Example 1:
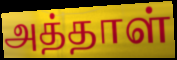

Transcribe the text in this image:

அத்தாள்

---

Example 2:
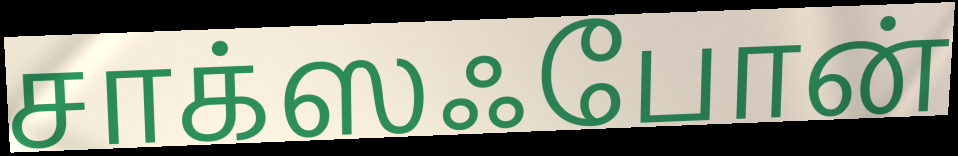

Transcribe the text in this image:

சாக்ஸஃபோன்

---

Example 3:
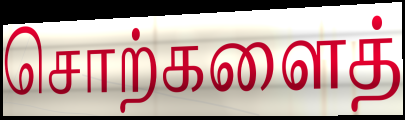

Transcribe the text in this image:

சொற்களைத்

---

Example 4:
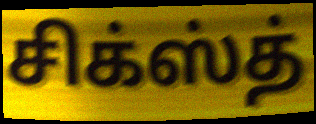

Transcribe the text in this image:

சிக்ஸ்த்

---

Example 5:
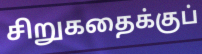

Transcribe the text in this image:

சிறுகதைக்குப்